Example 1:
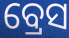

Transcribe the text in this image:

ବ୍ରେସ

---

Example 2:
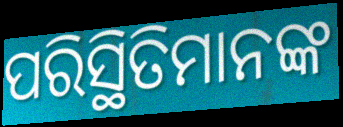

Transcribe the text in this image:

ପରିସ୍ଥିତିମାନଙ୍କ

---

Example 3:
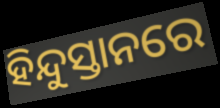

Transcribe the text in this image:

ହିନ୍ଦୁସ୍ତାନରେ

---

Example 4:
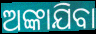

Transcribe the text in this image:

ଅଙ୍କାଯିବା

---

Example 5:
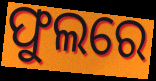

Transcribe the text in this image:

ଫୁଲରେ